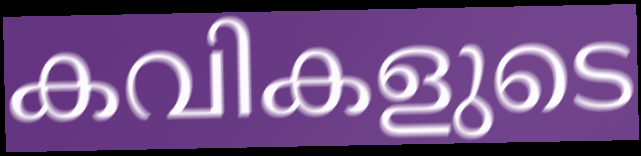
കവികളുടെ